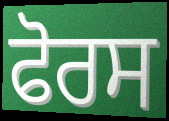
ਫੋਰਸ